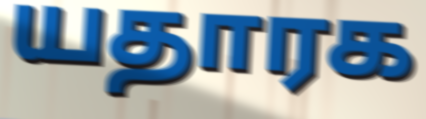
யதாரக